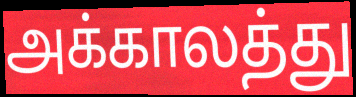
அக்காலத்து